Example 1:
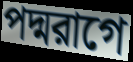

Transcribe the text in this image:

পদ্মরাগে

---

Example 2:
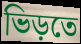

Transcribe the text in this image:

ভিড়তে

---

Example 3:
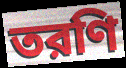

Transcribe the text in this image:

তরণি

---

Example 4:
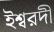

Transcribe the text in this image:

ইশ্বরদী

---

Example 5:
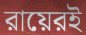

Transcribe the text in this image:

রায়েরই